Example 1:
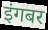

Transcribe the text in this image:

इंगबर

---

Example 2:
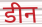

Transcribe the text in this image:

डीन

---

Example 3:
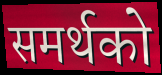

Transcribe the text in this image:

समर्थको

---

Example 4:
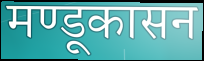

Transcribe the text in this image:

मण्डूकासन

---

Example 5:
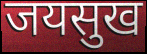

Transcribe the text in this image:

जयसुख